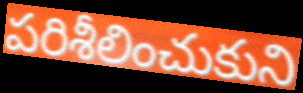
పరిశీలించుకుని